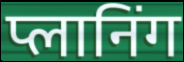
प्लानिंग